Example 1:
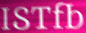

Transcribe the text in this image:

ISTfb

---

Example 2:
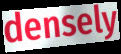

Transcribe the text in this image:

densely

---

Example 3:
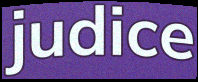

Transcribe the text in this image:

judice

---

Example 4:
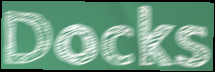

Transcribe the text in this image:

Docks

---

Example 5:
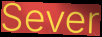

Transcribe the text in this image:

Sever